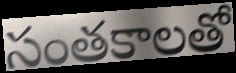
సంతకాలతో